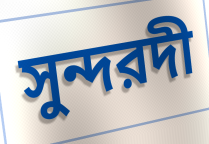
সুন্দরদী